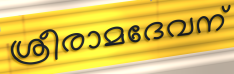
ശ്രീരാമദേവന്